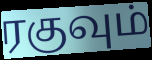
ரகுவும்